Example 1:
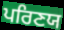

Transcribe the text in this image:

ਪਰਿਣਯ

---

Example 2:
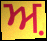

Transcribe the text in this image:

ਅ਼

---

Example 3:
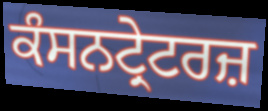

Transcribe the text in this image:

ਕੰਸਨਟ੍ਰੇਟਰਜ਼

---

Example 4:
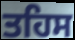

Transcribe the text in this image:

ਤਹਿਸ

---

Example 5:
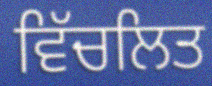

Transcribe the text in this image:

ਵਿੱਚਲਿਤ